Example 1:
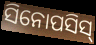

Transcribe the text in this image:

ସିନୋପସିସ୍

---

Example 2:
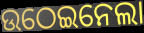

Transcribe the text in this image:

ଉଠେଇନେଲା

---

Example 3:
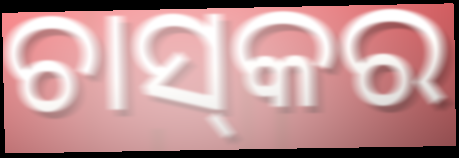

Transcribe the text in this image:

ଚାସ୍‌କର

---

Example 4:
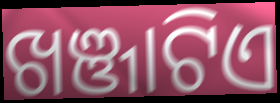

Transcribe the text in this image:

ଖଞ୍ଜାଟିଏ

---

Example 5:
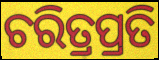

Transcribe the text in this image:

ଚରିତ୍ରପ୍ରତି